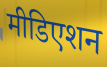
मीडिएशन